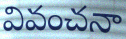
వివంచనా